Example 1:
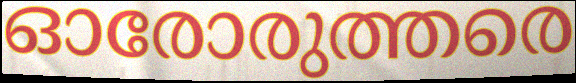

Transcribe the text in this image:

ഓരോരുത്തരെ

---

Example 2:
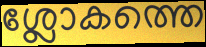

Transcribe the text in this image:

ശ്ലോകത്തെ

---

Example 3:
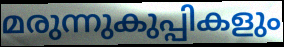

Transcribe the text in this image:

മരുന്നുകുപ്പികളും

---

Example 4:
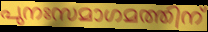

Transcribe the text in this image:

പുനഃസമാഗമത്തിന്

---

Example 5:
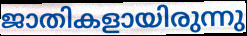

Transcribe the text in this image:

ജാതികളായിരുന്നു